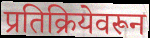
प्रतिक्रियेवरून